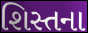
શિસ્તના